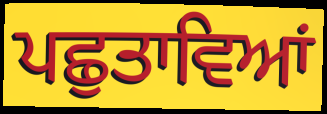
ਪਛੁਤਾਵਿਆਂ